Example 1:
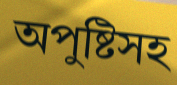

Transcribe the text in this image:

অপুষ্টিসহ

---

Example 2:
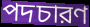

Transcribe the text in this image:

পদচারণ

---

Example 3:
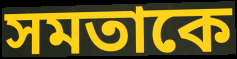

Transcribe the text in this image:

সমতাকে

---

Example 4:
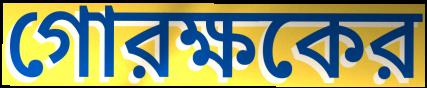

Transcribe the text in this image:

গোরক্ষকের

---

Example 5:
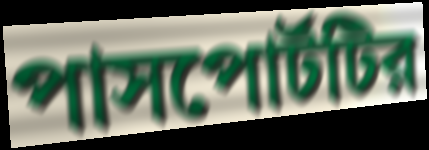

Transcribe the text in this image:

পাসপোর্টটির